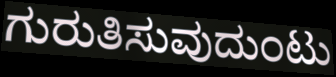
ಗುರುತಿಸುವುದುಂಟು